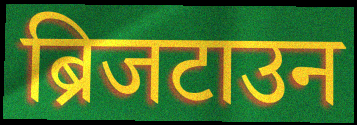
ब्रिजटाउन